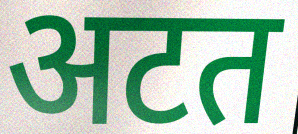
अटत